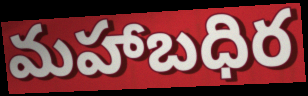
మహాబధిర